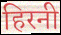
हिरनी